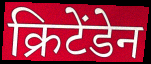
क्रिटेंडेन